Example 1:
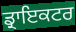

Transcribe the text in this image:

ਡ੍ਰਾਇਕਟਰ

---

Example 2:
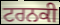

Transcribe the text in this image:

ਟਰਨਕੀ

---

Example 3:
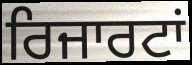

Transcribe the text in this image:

ਰਿਜਾਰਟਾਂ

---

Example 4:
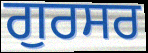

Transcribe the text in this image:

ਗੁਰਸਰ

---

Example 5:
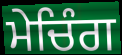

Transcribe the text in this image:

ਮੇਚਿੰਗ